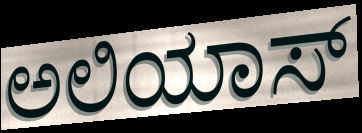
ಅಲಿಯಾಸ್